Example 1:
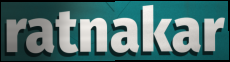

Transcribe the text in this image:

ratnakar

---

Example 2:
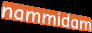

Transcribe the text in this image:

nammidam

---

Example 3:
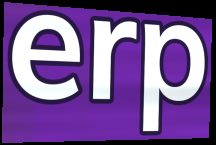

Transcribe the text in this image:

erp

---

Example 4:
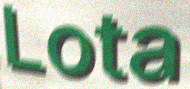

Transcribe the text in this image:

Lota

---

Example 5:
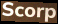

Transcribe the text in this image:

Scorp